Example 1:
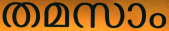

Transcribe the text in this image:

തമസാം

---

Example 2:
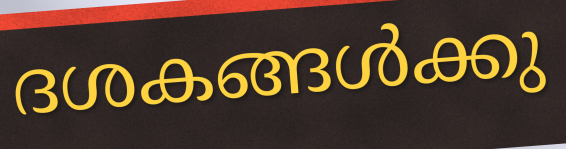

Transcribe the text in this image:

ദശകങ്ങൾക്കു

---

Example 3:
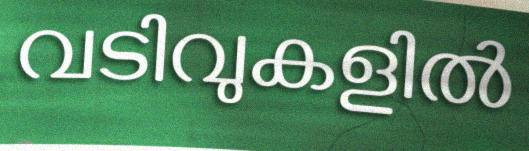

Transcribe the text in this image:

വടിവുകളിൽ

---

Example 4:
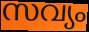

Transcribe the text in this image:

സവ്യം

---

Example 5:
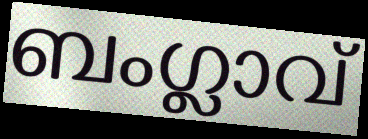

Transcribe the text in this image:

ബംഗ്ലാവ്